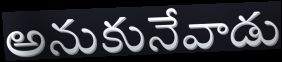
అనుకునేవాడు